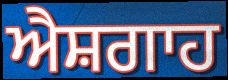
ਐਸ਼ਗਾਹ